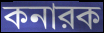
কনারক